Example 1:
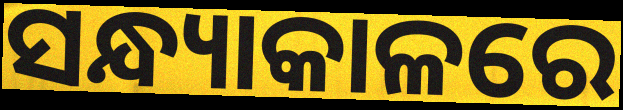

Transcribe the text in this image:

ସନ୍ଧ୍ୟାକାଳରେ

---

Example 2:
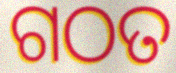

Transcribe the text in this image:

ଗଠତ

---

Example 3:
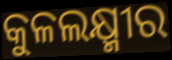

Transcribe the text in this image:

କୁଳଲକ୍ଷ୍ମୀର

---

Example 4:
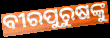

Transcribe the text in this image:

ବୀରପୁରୁଷଙ୍କୁ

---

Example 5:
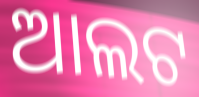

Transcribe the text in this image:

ଆଲଟ